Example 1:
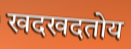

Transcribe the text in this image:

खदखदतोय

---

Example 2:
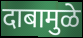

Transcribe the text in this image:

दाबामुळे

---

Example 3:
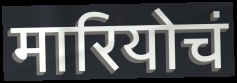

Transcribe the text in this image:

मारियोचं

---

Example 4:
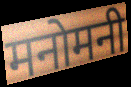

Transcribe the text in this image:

मनोमनी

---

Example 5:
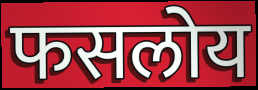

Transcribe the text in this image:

फसलोय